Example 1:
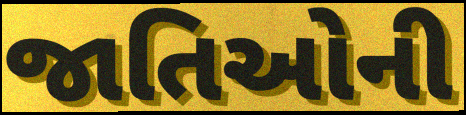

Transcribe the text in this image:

જાતિઓની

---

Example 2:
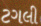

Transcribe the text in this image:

ટગલી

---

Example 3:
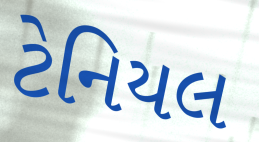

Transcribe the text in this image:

ટેનિયલ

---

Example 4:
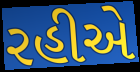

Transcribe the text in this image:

રહીએ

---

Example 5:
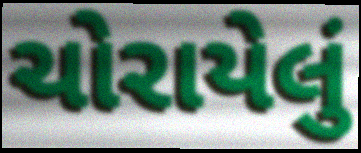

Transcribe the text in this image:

ચોરાયેલું